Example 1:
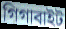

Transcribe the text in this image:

গিগাবাইট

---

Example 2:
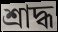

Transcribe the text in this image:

শ্ৰাদ্ধ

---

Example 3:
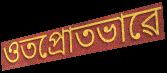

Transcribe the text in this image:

ওতপ্ৰোতভাৱে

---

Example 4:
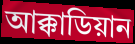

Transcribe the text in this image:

আক্কাডিয়ান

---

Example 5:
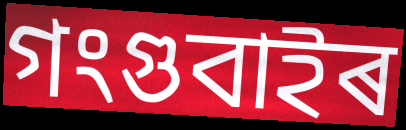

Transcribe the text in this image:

গংগুবাইৰ